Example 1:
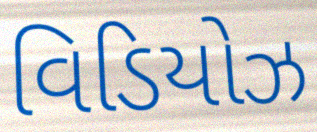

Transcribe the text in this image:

વિડિયોઝ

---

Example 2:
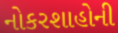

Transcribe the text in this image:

નોકરશાહોની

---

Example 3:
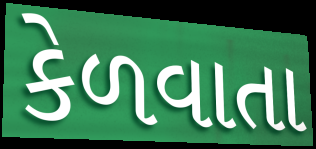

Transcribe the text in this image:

કેળવાતા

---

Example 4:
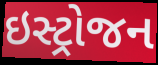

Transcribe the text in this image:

ઇસ્ટ્રોજન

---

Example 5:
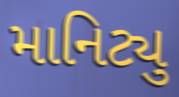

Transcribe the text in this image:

માનિટ્યુ